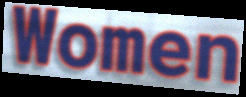
Women